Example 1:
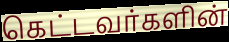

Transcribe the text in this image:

கெட்டவர்களின்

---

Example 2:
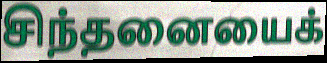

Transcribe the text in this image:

சிந்தனையைக்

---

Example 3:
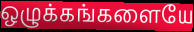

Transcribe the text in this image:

ஒழுக்கங்களையே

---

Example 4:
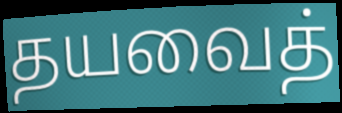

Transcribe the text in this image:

தயவைத்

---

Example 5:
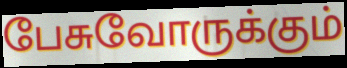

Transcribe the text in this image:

பேசுவோருக்கும்